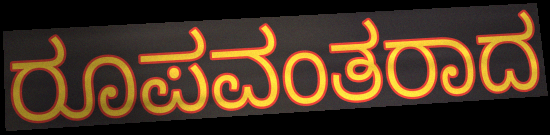
ರೂಪವಂತರಾದ